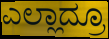
ಎಲ್ಲಾದ್ರೂ